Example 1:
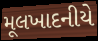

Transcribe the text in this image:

મૂલખાદનીયે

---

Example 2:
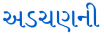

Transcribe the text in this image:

અડચણની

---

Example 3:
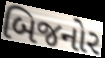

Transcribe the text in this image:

બિજનોર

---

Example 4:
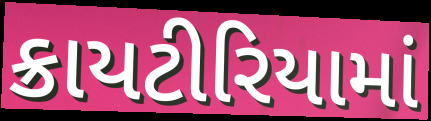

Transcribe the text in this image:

ક્રાયટીરિયામાં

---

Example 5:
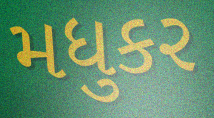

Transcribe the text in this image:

મધુકર